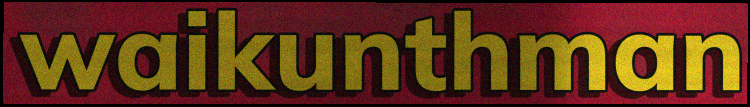
waikunthman